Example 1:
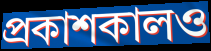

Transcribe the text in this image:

প্রকাশকালও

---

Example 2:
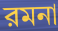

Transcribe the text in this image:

রমনা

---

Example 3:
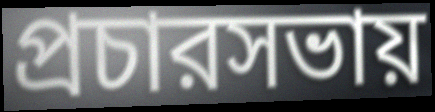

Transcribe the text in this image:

প্রচারসভায়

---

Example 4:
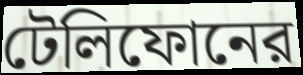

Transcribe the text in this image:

টেলিফোনের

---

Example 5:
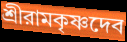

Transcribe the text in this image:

শ্রীরামকৃষ্ণদেব